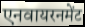
एनवायरनमेंट